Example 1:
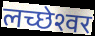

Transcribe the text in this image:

लच्छेश्वर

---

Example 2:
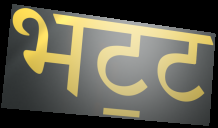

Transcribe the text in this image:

भट॒ट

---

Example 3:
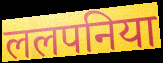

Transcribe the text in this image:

ललपनिया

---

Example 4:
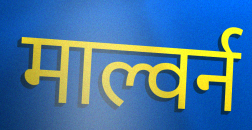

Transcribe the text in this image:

माल्वर्न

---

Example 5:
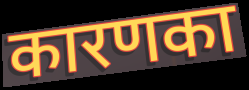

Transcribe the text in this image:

कारणका